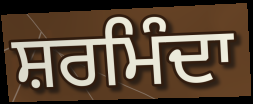
ਸ਼ਰਮਿੰਦਾ